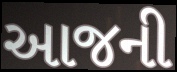
આજની